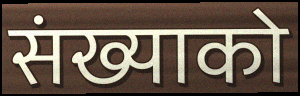
संख्याको